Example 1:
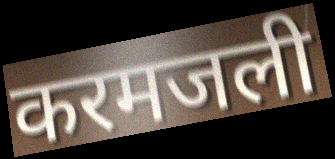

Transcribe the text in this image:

करमजली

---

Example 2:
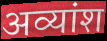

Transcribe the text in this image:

अव्यांश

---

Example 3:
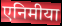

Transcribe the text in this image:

एनिमीया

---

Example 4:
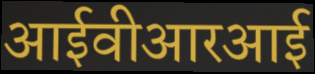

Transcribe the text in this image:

आईवीआरआई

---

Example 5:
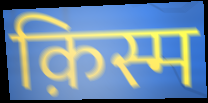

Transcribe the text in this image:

क़िस्‍म